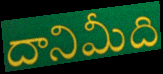
దానిమీది